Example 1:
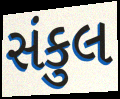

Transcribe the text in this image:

સંકુલ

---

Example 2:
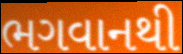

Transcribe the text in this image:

ભગવાનથી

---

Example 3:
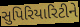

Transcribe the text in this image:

સુપિરિયારિટીને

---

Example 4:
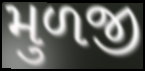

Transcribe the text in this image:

મુળજી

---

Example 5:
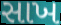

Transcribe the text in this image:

સાખ